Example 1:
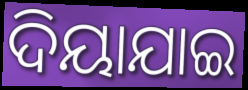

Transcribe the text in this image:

ଦିୟାଯାଇ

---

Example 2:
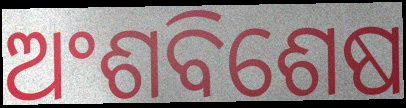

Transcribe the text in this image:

ଅଂଶବିଶେଷ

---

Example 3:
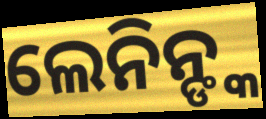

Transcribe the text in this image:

ଲେନିନ୍ଙ୍କ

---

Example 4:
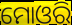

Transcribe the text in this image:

ମୋଓରି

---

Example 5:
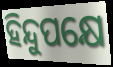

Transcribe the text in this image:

ହିନ୍ଦୁପକ୍ଷେ